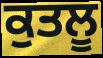
ਕੁਤਲੂ